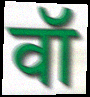
वॉ